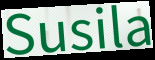
Susila